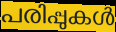
പരിപ്പുകൾ